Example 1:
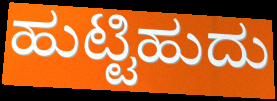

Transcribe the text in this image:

ಹುಟ್ಟಿಹುದು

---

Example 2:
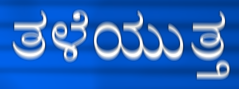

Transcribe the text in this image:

ತಳೆಯುತ್ತ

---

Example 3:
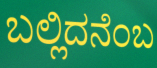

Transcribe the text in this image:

ಬಲ್ಲಿದನೆಂಬ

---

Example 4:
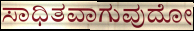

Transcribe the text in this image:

ಸಾಧಿತವಾಗುವುದೋ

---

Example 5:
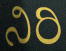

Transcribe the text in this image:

ನಿರಿ